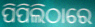
ପିପିଲିଠାରେ